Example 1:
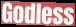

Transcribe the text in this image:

Godless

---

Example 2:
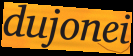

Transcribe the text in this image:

dujonei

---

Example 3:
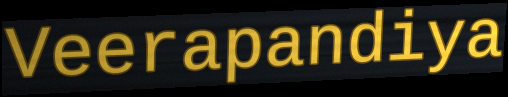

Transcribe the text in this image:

Veerapandiya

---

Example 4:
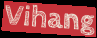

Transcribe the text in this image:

Vihang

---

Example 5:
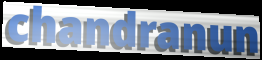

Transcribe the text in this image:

chandranun